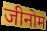
जीनोम